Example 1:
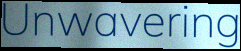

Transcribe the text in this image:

Unwavering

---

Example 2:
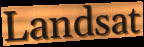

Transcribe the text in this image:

Landsat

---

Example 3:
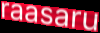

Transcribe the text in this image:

raasaru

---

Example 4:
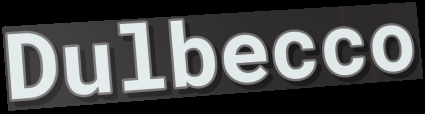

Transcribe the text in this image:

Dulbecco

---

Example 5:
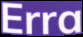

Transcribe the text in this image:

Erra